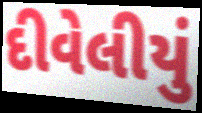
દીવેલીયું